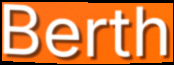
Berth